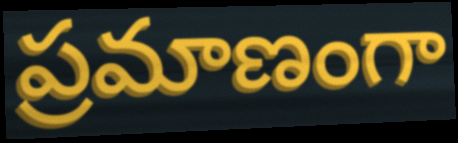
ప్రమాణంగా